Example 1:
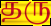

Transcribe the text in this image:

தரு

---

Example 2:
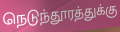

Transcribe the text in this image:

நெடுந்தூரத்துக்கு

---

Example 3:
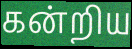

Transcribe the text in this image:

கன்றிய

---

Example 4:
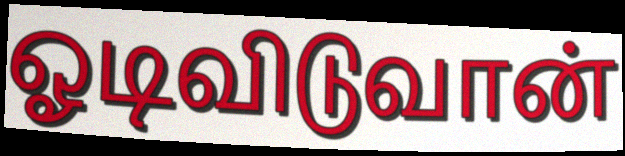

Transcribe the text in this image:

ஓடிவிடுவான்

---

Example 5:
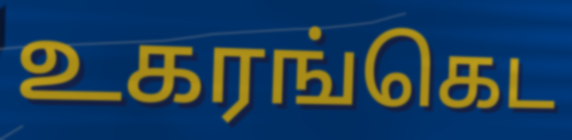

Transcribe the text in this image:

உகரங்கெட